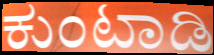
ಕುಂಟಾಡಿ